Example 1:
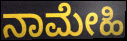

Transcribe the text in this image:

ನಾಮೇಹಿ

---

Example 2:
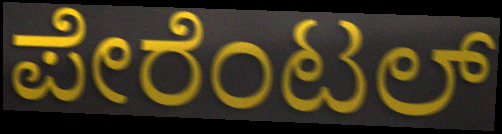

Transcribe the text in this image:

ಪೇರೆಂಟಲ್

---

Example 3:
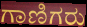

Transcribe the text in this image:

ಗಾಣಿಗರು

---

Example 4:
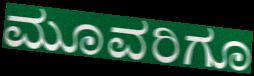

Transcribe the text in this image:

ಮೂವರಿಗೂ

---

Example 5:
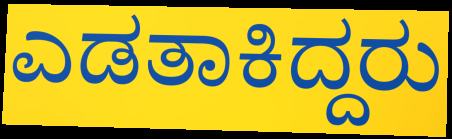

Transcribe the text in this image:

ಎಡತಾಕಿದ್ದರು